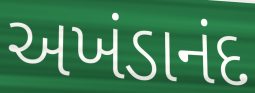
અખંડાનંદ